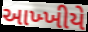
આખ્ખીયે